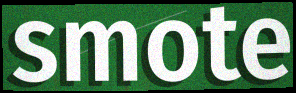
smote